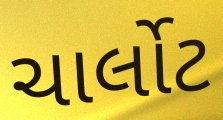
ચાર્લોટ